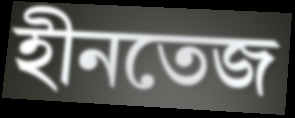
হীনতেজ